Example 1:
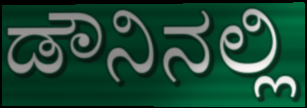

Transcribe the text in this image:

ಡೌನಿನಲ್ಲಿ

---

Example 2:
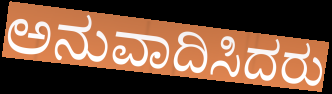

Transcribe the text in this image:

ಅನುವಾದಿಸಿದರು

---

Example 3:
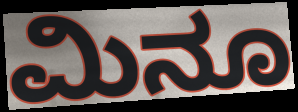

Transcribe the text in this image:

ಮಿನೂ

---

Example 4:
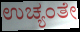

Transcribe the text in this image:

ಉಚ್ಯಂತೇ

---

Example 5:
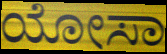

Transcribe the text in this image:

ಯೋಸಾ